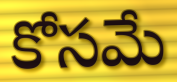
కోసమే